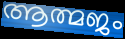
ആത്മജം